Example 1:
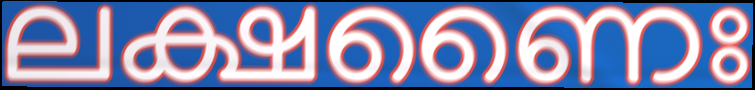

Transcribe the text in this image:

ലക്ഷണൈഃ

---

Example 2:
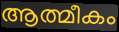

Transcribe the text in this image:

ആത്മീകം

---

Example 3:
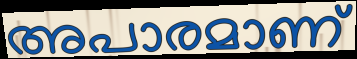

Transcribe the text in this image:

അപാരമാണ്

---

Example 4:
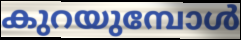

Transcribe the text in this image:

കുറയുമ്പോൾ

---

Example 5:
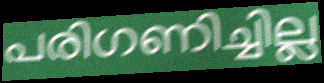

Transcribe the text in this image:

പരിഗണിച്ചില്ല